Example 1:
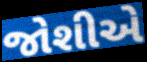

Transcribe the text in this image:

જોશીએ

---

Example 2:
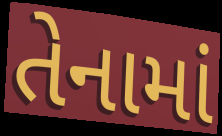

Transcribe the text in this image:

તેનામાં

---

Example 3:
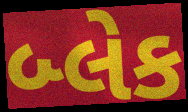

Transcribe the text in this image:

બ્લેક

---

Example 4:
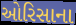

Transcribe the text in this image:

ઓરિસાના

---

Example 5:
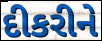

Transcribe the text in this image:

દીકરીને